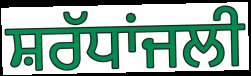
ਸ਼ਰੱਧਾਂਜਲੀ